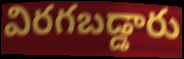
విరగబడ్డారు